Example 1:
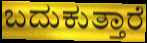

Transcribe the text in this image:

ಬದುಕುತ್ತಾರೆ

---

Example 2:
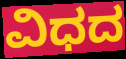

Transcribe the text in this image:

ವಿಧದ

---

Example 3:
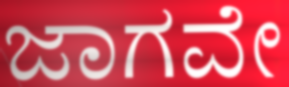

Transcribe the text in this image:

ಜಾಗವೇ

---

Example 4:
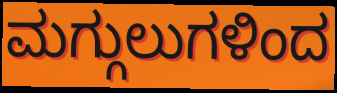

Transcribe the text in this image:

ಮಗ್ಗುಲುಗಳಿಂದ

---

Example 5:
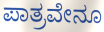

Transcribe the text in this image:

ಪಾತ್ರವೇನೂ